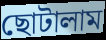
ছোটালাম